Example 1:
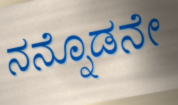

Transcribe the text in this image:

ನನ್ನೊಡನೇ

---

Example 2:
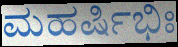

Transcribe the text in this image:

ಮಹರ್ಷಿಭಿಃ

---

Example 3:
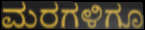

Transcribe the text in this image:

ಮರಗಳಿಗೂ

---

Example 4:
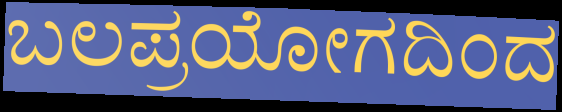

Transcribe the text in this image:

ಬಲಪ್ರಯೋಗದಿಂದ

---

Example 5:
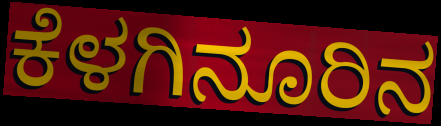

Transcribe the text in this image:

ಕೆಳಗಿನೂರಿನ